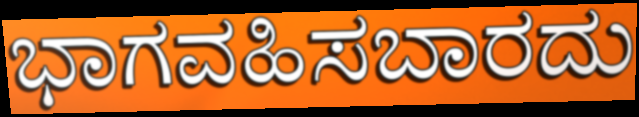
ಭಾಗವಹಿಸಬಾರದು